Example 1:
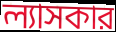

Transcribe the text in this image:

ল্যাসকার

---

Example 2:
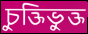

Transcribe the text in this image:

চুক্তিভুক্ত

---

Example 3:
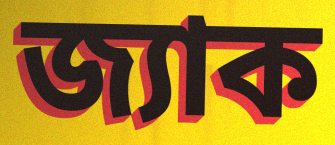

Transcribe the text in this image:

জ্যাক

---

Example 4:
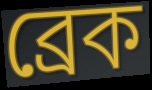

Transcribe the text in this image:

ব্রেক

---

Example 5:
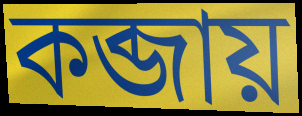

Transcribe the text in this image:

কব্জায়